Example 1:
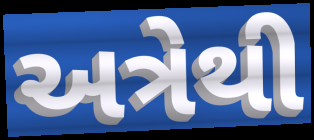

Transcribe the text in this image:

અત્રેથી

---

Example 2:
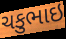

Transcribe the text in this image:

ચકુભાઇ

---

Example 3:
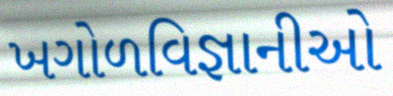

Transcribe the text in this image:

ખગોળવિજ્ઞાનીઓ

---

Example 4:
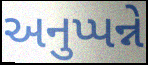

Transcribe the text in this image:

અનુપ્પન્ને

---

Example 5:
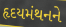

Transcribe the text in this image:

હૃદયમંથનને